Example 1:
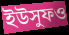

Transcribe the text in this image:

ইউসুফও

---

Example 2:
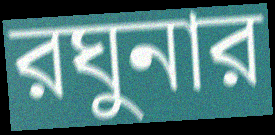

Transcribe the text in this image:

রঘুনার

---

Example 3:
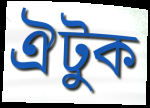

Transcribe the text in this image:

ঐটুক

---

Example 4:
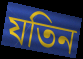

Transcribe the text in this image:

যতিন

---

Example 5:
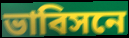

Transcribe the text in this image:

ভাবিসনে